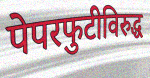
पेपरफुटीविरुद्ध